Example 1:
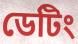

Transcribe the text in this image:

ডেটিং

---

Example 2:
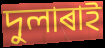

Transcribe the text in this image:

দুলাৰাই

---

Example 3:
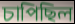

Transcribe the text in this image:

চাপিছিল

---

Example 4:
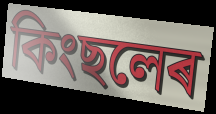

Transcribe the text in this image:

কিংছলেৰ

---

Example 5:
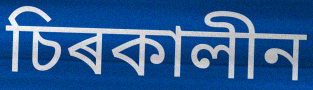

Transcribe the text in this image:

চিৰকালীন